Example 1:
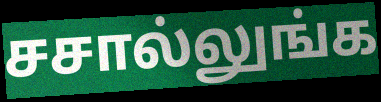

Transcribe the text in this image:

சசால்லுங்க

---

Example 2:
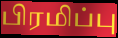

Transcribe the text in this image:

பிரமிப்பு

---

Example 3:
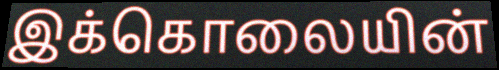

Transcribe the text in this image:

இக்கொலையின்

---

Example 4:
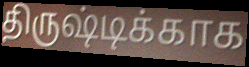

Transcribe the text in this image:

திருஷ்டிக்காக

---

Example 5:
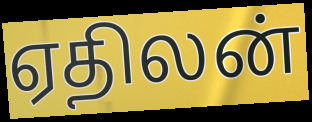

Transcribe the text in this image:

ஏதிலன்